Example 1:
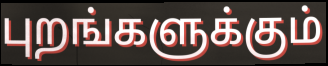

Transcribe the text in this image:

புறங்களுக்கும்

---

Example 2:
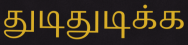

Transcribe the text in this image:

துடிதுடிக்க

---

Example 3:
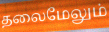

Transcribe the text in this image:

தலைமேலும்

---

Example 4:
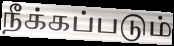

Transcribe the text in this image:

நீக்கப்படும்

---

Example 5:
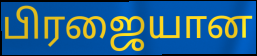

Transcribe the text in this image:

பிரஜையான